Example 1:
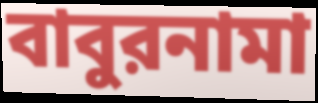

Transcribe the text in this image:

বাবুরনামা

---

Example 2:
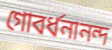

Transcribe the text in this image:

গোবর্ধনানন্দ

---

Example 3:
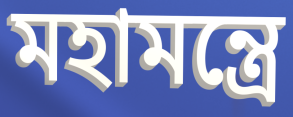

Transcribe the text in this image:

মহামন্ত্রে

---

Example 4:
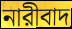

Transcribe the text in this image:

নারীবাদ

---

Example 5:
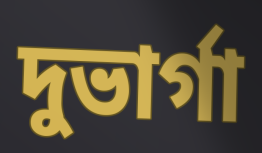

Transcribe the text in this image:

দুভার্গা